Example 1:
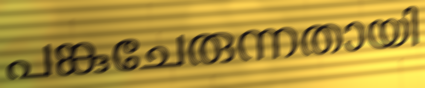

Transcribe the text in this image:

പങ്കുചേരുന്നതായി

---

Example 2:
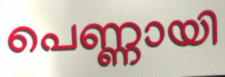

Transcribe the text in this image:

പെണ്ണായി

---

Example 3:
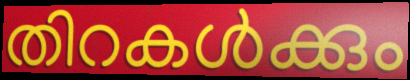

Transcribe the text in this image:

തിറകൾക്കും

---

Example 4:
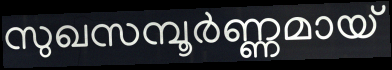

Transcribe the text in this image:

സുഖസമ്പൂർണ്ണമായ്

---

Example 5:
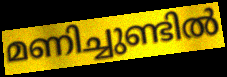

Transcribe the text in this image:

മണിച്ചുണ്ടിൽ